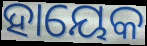
ହାୟେକ